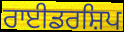
ਰਾਈਡਰਸ਼ਿਪ